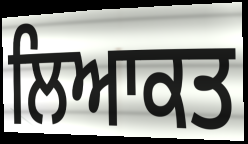
ਲਿਆਕਤ